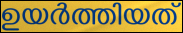
ഉയർത്തിയത്